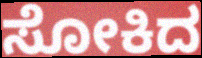
ಸೋಕಿದ